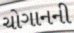
ચોગાનની